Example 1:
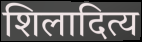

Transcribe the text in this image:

शिलादित्य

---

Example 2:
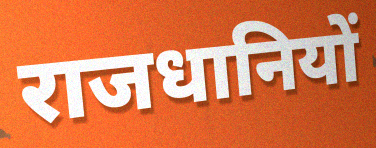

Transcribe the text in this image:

राजधानियों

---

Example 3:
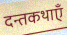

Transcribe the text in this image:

दन्तकथाएँ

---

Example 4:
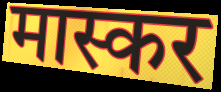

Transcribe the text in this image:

मास्कर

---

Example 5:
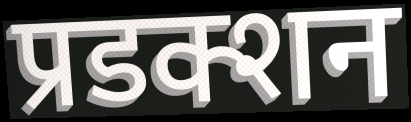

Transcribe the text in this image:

प्रडक्शन